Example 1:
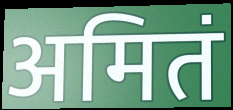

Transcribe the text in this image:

अमितं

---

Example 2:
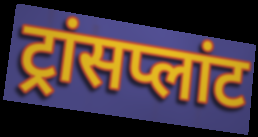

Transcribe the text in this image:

ट्रांसप्लांट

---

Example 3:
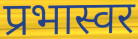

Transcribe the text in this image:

प्रभास्वर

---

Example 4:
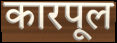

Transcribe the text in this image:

कारपूल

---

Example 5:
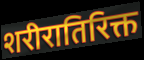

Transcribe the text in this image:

शरीरातिरिक्त